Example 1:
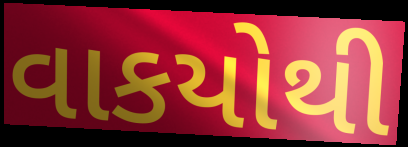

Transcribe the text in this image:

વાકયોથી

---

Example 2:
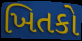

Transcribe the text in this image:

ખિતકો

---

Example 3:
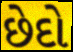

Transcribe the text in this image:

છેદો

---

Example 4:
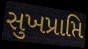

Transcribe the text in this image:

સુખપ્રાપ્તિ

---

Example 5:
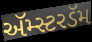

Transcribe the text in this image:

ઍમ્સ્ટરડૅમ